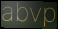
abvp